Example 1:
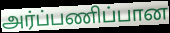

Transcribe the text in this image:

அர்ப்பணிப்பான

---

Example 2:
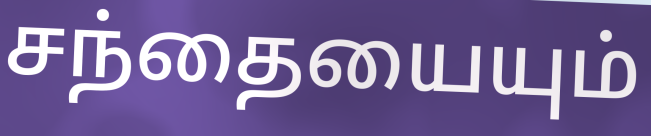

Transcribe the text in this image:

சந்தையையும்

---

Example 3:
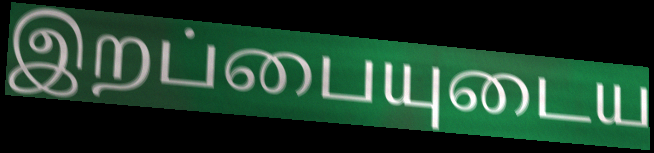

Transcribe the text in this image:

இறப்பையுடைய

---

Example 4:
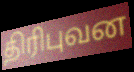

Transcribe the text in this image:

திரிபுவன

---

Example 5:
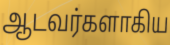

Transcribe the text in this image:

ஆடவர்களாகிய